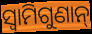
ସ୍ୱାମିଗୁଣାନ୍